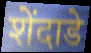
शेंदाडे